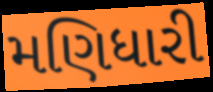
મણિધારી